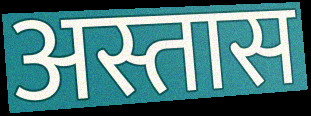
अस्तास